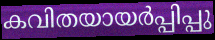
കവിതയായർപ്പിപ്പു